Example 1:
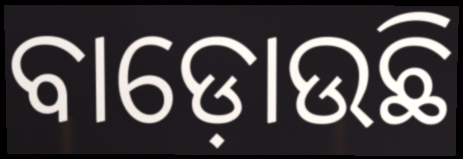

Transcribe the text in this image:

ବାଡ଼ୋଉଛି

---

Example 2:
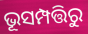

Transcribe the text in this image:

ଭୂସମ୍ପତ୍ତିରୁ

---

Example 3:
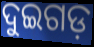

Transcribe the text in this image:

ଦୁଇଗଡ଼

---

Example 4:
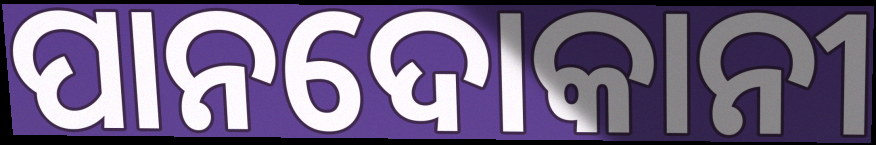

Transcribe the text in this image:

ପାନଦୋକାନୀ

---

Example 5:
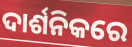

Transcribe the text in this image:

ଦାର୍ଶନିକରେ